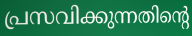
പ്രസവിക്കുന്നതിന്റെ